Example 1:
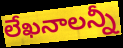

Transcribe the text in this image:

లేఖనాలన్నీ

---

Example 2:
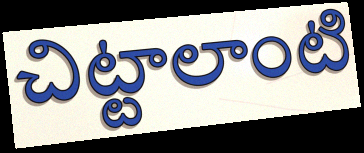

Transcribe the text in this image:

చిట్టాలాంటి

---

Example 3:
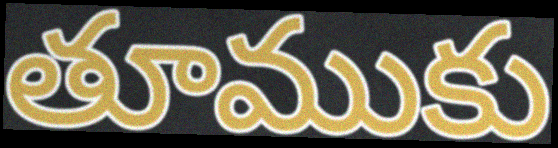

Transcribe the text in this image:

తూముకు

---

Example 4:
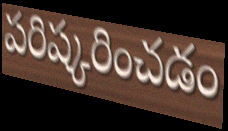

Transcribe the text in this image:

పరిష్కరించడం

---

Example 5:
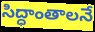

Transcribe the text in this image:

సిద్ధాంతాలనే